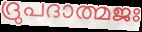
ദ്രുപദാത്മജഃ